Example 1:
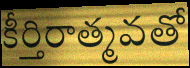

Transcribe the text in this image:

కీర్తిరాత్మవతో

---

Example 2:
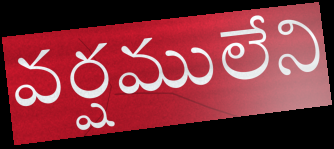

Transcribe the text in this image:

వర్షములేని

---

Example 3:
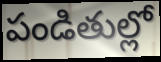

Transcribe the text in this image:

పండితుల్లో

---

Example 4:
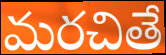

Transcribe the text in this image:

మరచితే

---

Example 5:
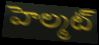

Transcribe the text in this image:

హెల్మట్